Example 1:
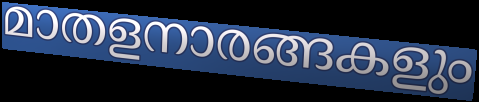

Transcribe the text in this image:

മാതളനാരങ്ങകളും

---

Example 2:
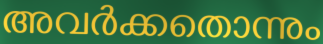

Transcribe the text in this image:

അവർക്കതൊന്നും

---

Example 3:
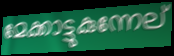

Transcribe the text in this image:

മേക്കാട്ടുകുന്നേല്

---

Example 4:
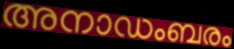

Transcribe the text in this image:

അനാഡംബരം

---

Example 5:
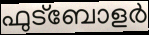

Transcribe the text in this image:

ഫുട്ബോളർ